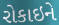
રોકાઇને